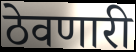
ठेवणारी